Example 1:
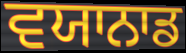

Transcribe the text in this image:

ਵਯਾਨਾਡ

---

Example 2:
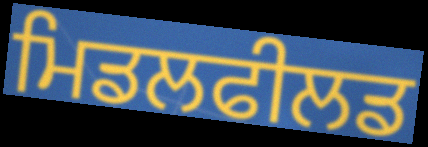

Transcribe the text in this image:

ਮਿਡਲਫੀਲਡ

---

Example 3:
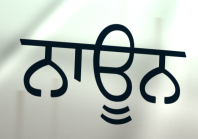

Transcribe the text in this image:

ਨਾਊਨ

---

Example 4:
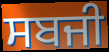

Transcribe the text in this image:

ਸਬਜੀ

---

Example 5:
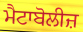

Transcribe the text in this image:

ਮੈਟਾਬੋਲੀਜ਼